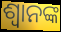
ଶ୍ବାନଙ୍କ